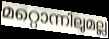
മറ്റൊന്നിലുമല്ല